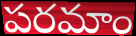
పరమాం